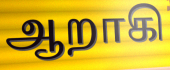
ஆறாகி